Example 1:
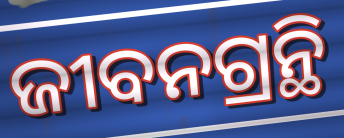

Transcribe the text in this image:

ଜୀବନଗ୍ରନ୍ଥି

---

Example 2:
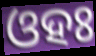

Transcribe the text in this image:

ଓହଃ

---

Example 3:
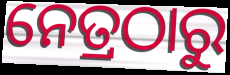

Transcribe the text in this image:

ନେତ୍ରଠାରୁ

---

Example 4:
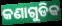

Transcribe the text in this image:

କଣାଗୁଡିକ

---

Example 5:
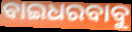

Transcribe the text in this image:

ବାଇଧରବାବୁ